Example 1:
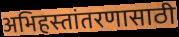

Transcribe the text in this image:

अभिहस्तांतरणासाठी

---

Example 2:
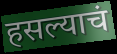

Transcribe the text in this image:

हसल्याचं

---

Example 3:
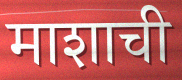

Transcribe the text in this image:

माशाची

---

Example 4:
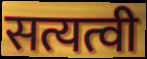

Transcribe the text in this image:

सत्यत्वी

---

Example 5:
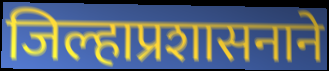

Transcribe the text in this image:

जिल्हाप्रशासनाने